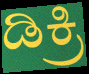
ಡಿಕ್ರಿ